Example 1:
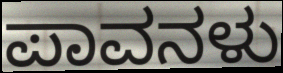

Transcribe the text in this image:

ಪಾವನಳು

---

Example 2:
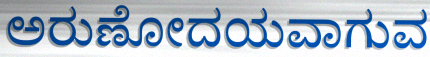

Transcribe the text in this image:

ಅರುಣೋದಯವಾಗುವ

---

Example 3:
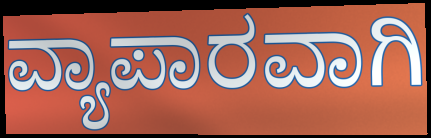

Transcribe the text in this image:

ವ್ಯಾಪಾರವಾಗಿ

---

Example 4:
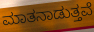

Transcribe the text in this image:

ಮಾತನಾಡುತ್ತವೆ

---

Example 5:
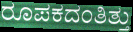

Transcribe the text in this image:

ರೂಪಕದಂತಿತ್ತು